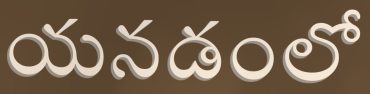
యనడంలో